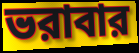
ভরাবার